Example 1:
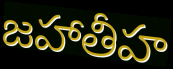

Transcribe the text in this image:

జహాతీహ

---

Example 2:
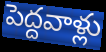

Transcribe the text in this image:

పెద్దవాళ్లు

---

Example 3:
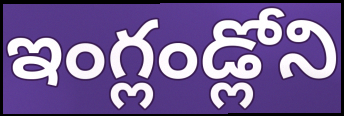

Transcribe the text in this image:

ఇంగ్లండ్లోని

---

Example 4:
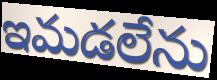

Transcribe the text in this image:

ఇమడలేను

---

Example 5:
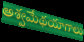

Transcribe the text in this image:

అశ్వమేథయాగాలు